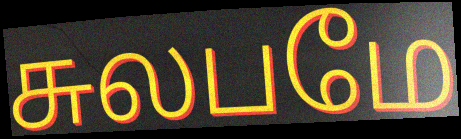
சுலபமே